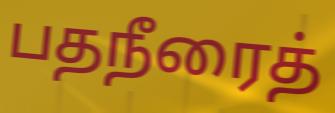
பதநீரைத்